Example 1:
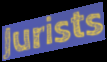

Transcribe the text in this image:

Jurists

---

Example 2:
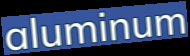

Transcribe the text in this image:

aluminum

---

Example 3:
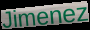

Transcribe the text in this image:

Jimenez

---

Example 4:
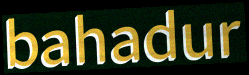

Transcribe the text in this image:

bahadur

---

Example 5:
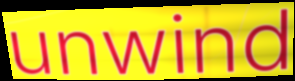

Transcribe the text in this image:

unwind